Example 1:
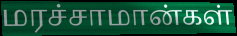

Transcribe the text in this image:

மரச்சாமான்கள்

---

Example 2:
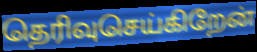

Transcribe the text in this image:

தெரிவுசெய்கிறேன்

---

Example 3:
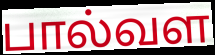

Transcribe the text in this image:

பால்வள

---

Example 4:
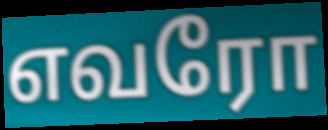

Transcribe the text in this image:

எவரோ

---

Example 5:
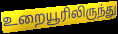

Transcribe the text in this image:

உறையூரிலிருந்து